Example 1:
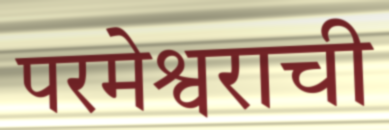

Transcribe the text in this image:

परमेश्वराची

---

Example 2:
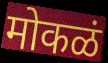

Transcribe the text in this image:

मोकळं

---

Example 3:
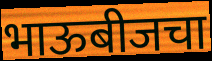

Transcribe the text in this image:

भाऊबीजचा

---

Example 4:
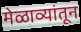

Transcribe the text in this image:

मेळाव्यांतून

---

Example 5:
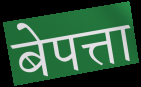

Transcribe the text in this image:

बेपत्ता